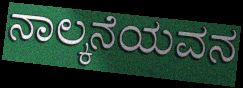
ನಾಲ್ಕನೆಯವನ